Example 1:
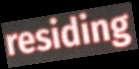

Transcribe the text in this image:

residing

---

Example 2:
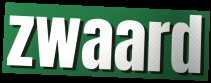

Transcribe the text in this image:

zwaard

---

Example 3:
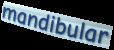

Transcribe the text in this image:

mandibular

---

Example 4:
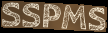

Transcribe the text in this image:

SSPMS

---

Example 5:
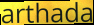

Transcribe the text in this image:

arthada